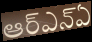
ఆర్ఎన్ఏ